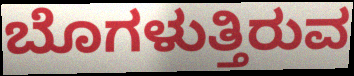
ಬೊಗಳುತ್ತಿರುವ